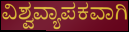
ವಿಶ್ವವ್ಯಾಪಕವಾಗಿ